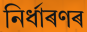
নিৰ্ধাৰণৰ